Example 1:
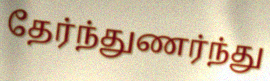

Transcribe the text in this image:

தேர்ந்துணர்ந்து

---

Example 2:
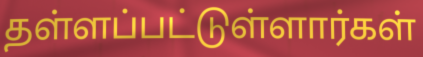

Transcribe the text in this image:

தள்ளப்பட்டுள்ளார்கள்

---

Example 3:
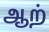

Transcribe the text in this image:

ஆற்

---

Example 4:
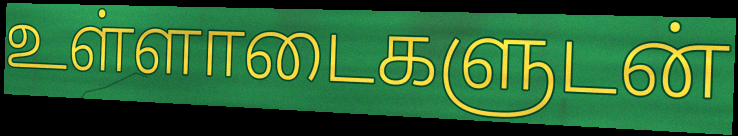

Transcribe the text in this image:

உள்ளாடைகளுடன்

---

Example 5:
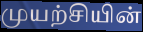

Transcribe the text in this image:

முயற்சியின்